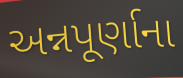
અન્નપૂર્ણાના